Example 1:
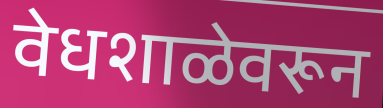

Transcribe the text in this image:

वेधशाळेवरून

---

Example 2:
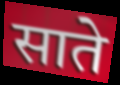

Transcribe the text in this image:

साते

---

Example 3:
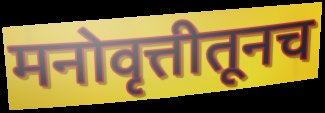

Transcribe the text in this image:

मनोवृत्तीतूनच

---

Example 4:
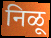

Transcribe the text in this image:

निळू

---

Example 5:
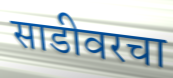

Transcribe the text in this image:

साडीवरचा